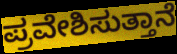
ಪ್ರವೇಶಿಸುತ್ತಾನೆ